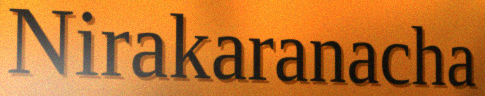
Nirakaranacha